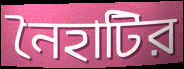
নৈহাটির